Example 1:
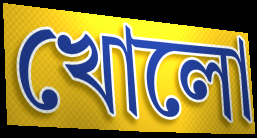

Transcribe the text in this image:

খোলো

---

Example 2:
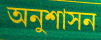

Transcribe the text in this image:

অনুশাসন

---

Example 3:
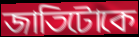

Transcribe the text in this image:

জাতিটোকে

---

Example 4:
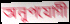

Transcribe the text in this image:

অনুপযোগী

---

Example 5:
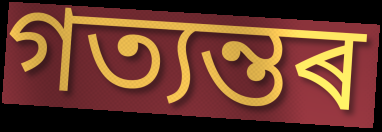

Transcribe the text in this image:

গত্যন্তৰ